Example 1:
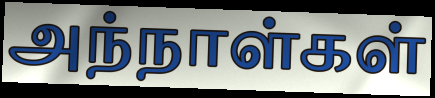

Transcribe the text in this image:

அந்நாள்கள்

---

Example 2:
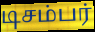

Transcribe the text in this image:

டிசம்பர்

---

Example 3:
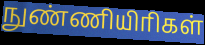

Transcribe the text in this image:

நுண்ணியிரிகள்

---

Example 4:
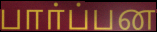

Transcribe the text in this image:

பார்ப்பன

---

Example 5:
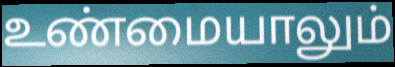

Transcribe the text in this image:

உண்மையாலும்